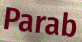
Parab